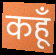
कहूँ